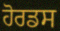
ਹੋਰਡਸ